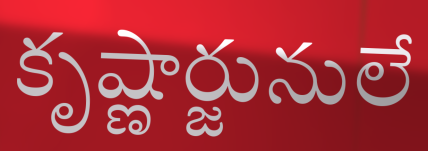
కృష్ణార్జునులే